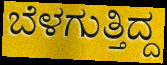
ಬೆಳಗುತ್ತಿದ್ದ